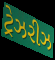
ટ્રેઝરીઝ